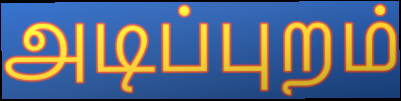
அடிப்புறம்